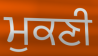
ਮੁਕਣੀ